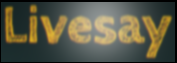
Livesay